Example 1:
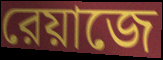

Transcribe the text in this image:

রেয়াজে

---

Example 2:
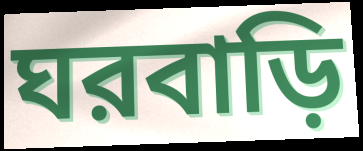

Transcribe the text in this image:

ঘরবাড়ি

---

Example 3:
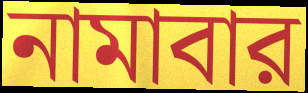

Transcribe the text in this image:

নামাবার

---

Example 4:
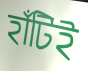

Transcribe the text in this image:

হাঁটিই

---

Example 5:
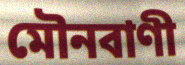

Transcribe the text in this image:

মৌনবাণী